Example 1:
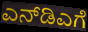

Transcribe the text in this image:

ಎನ್‌ಡಿಎಗೆ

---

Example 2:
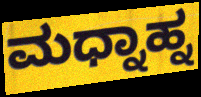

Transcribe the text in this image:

ಮಧ್ನಾಹ್ನ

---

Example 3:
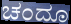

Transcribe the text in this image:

ಚಂದೂ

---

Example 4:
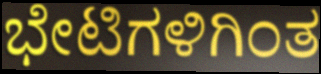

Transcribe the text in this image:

ಭೇಟಿಗಳಿಗಿಂತ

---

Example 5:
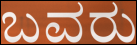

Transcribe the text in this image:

ಬವರು